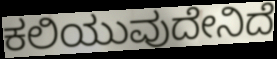
ಕಲಿಯುವುದೇನಿದೆ